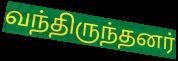
வந்திருந்தனர்